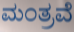
ಮಂತ್ರವೆ